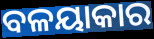
ବଳୟାକାର